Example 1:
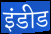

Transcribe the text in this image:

इंडीड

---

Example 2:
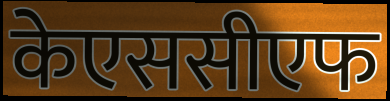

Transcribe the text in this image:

केएससीएफ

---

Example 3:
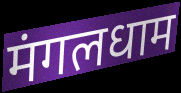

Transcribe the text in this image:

मंगलधाम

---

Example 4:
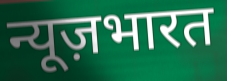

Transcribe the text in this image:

न्यूज़भारत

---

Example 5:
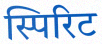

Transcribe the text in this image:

स्पिरिट